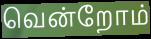
வென்றோம்